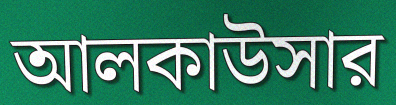
আলকাউসার